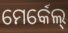
ମେର୍କେଲ୍